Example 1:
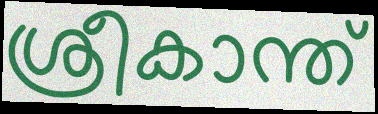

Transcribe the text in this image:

ശ്രീകാന്ത്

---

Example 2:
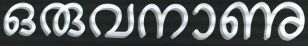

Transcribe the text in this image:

ഒരുവനാണു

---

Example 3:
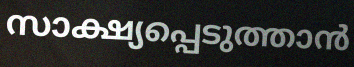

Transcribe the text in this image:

സാക്ഷ്യപ്പെടുത്താൻ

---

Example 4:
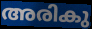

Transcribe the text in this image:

അരികു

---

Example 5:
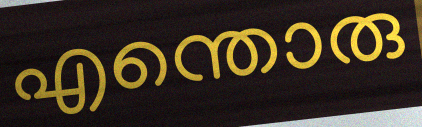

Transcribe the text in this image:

എന്തൊരു